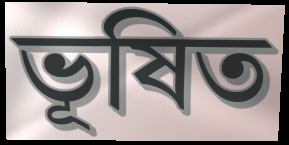
ভূষিত